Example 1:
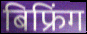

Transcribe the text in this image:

बिफ्रिंग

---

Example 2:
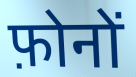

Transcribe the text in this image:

फ़ोनों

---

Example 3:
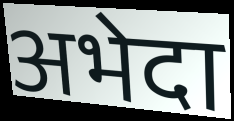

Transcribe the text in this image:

अभेदा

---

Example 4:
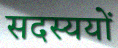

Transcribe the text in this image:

सदस्ययों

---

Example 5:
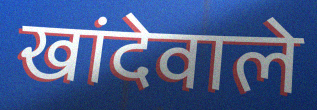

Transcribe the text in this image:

खांदेवाले